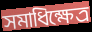
সমাধিক্ষেত্ৰ